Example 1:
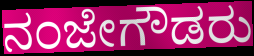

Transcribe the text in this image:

ನಂಜೇಗೌಡರು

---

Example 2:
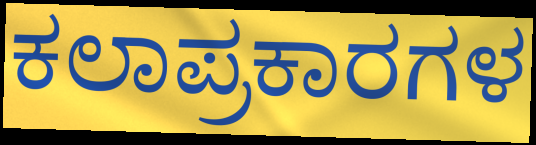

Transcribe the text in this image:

ಕಲಾಪ್ರಕಾರಗಳ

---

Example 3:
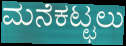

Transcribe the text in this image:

ಮನೆಕಟ್ಟಲು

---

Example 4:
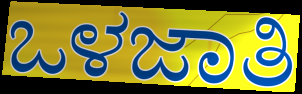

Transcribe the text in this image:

ಒಳಜಾತಿ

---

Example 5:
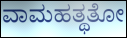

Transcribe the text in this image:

ವಾಮಹತ್ಥತೋ